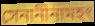
সেনানীনামহং